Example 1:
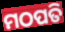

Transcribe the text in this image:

ମଠପତି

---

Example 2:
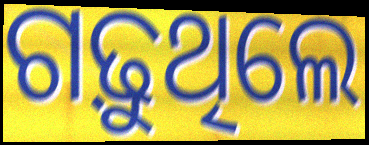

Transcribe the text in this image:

ଗଢ଼ୁଥିଲେ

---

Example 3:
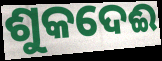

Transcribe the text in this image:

ଶୁକଦେଈ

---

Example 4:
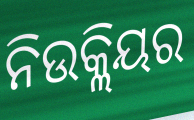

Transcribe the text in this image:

ନିଉକ୍ଲିୟର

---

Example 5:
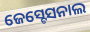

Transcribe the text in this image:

ଜେସ୍ଟେସନାଲ